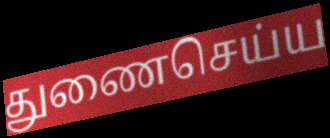
துணைசெய்ய